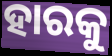
ହାରକୁ